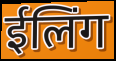
ईलिंग